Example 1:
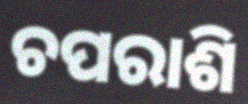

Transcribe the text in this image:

ଚପରାଶି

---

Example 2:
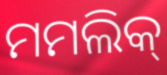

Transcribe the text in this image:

ମମଲିକ୍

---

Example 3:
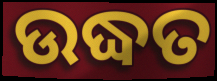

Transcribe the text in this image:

ଉଦ୍ଧତ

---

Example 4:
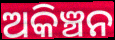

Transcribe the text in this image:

ଅକିଞ୍ଚନ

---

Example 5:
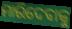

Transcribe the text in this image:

ମାରିଦେବାକୁ